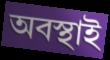
অবস্থাই